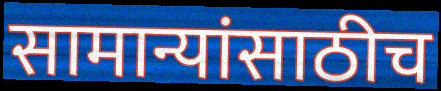
सामान्यांसाठीच